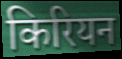
किरियन